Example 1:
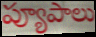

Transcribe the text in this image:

ప్యూపాలు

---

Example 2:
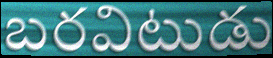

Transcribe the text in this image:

బరవిటుడు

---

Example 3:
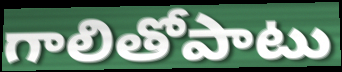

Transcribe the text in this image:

గాలితోపాటు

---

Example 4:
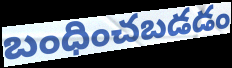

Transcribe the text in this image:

బంధించబడడం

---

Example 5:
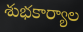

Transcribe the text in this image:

శుభకార్యాల